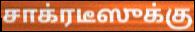
சாக்ரடீஸுக்கு